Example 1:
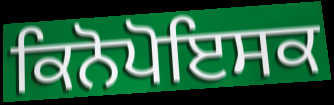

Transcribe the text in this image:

ਕਿਨੋਪੋਇਸਕ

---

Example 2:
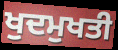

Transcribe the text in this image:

ਖੁਦਮੁਖਤੀ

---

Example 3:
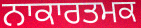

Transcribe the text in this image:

ਨਾਕਾਰਤਮਕ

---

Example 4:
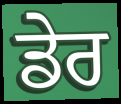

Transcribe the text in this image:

ਡੇਰ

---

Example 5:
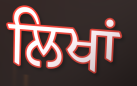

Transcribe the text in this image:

ਲਿਖਾਂ